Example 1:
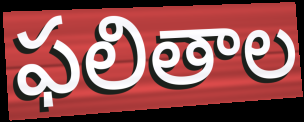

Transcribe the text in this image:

ఫలితాల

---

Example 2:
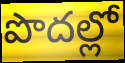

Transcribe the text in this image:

పొదల్లో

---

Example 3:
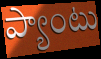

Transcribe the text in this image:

ప్యాంటు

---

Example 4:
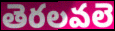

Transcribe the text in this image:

తెరలవలె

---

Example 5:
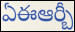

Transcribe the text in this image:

ఏఈఆర్బీ